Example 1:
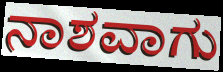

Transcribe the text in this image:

ನಾಶವಾಗು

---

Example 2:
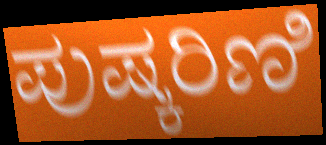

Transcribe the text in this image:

ಪುಷ್ಕರಿಣಿ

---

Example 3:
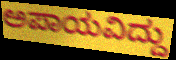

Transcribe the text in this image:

ಅಪಾಯವಿದ್ದು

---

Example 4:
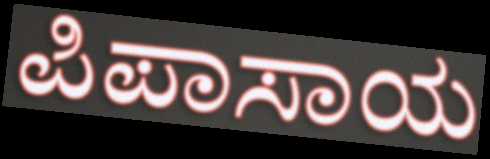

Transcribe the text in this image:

ಪಿಪಾಸಾಯ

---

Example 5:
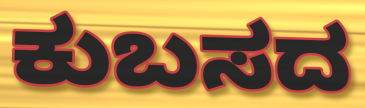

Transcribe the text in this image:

ಕುಬಸದ